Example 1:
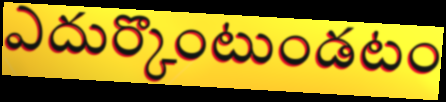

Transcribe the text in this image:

ఎదుర్కొంటుండటం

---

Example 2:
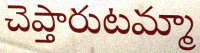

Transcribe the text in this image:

చెప్తారుటమ్మా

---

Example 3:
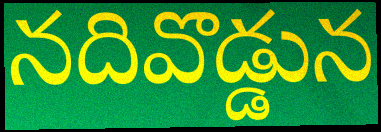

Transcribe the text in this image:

నదివొడ్డున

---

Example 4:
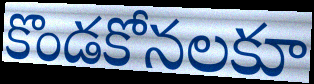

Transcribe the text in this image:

కొండకోనలకూ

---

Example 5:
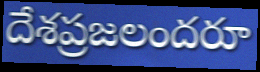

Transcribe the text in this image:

దేశప్రజలందరూ